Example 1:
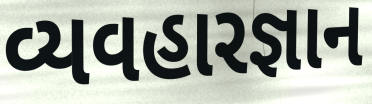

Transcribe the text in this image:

વ્યવહારજ્ઞાન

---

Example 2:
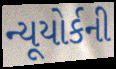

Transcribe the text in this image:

ન્યૂયોર્કની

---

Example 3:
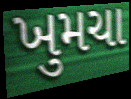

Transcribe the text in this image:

ખુમચા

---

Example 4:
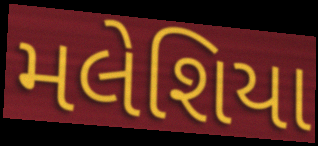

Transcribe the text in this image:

મલેશિયા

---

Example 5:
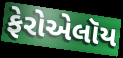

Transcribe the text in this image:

ફેરોએલૉય